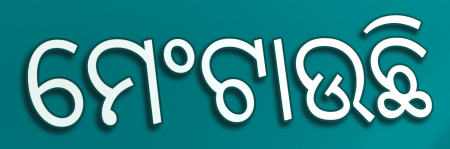
ମେଂଟାଉଛି